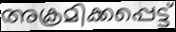
അക്രമിക്കപ്പെട്ട്